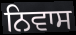
ਨਿਵਾਸ